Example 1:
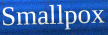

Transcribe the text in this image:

Smallpox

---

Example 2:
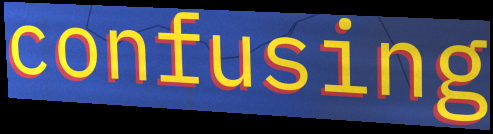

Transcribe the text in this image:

confusing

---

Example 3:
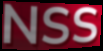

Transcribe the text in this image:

NSS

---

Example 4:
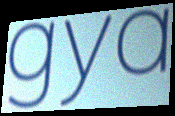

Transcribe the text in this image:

gya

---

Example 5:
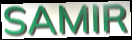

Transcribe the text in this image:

SAMIR